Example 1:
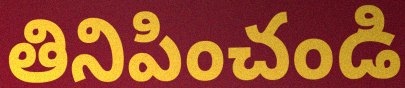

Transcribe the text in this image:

తినిపించండి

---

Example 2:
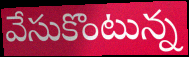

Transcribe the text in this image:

వేసుకొంటున్న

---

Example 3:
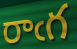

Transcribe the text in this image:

రాఁగ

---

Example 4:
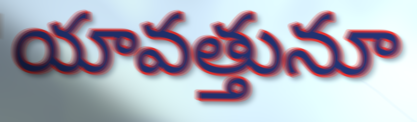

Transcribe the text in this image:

యావత్తునూ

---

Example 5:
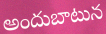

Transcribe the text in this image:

అందుబాటున